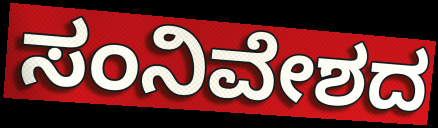
ಸಂನಿವೇಶದ